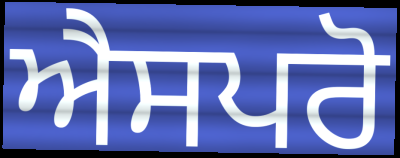
ਐਸਪਰੋ